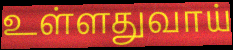
உள்ளதுவாய்